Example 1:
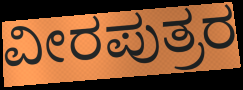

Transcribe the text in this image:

ವೀರಪುತ್ರರ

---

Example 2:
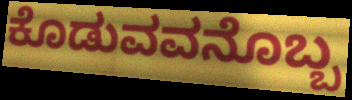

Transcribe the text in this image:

ಕೊಡುವವನೊಬ್ಬ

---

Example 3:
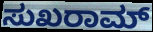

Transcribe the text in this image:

ಸುಖರಾಮ್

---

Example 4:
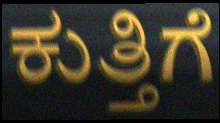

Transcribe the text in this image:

ಕುತ್ತಿಗೆ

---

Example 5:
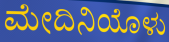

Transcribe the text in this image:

ಮೇದಿನಿಯೊಳು